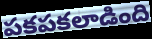
పకపకలాడింది